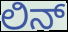
ಲಿನ್